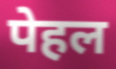
पेहल